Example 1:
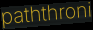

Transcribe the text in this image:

paththroni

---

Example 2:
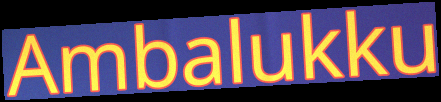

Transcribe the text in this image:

Ambalukku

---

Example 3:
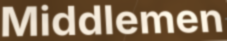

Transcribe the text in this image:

Middlemen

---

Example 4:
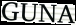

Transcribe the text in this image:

GUNA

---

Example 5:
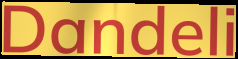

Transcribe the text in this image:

Dandeli